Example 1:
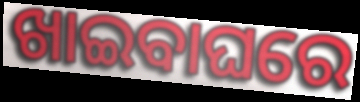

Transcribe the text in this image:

ଖାଇବାଘରେ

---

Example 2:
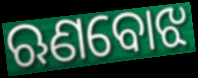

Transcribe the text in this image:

ଋଣବୋଝ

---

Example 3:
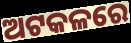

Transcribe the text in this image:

ଅଟକଳରେ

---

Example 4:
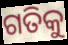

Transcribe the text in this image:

ଗତିକୁ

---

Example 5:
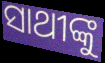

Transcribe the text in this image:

ସାଥୀଙ୍କୁ